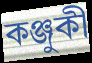
কঞ্জুকী